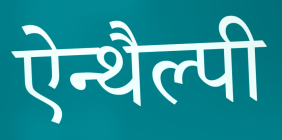
ऐन्थैल्पी